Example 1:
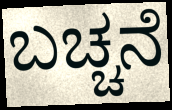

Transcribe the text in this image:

ಬಚ್ಚನೆ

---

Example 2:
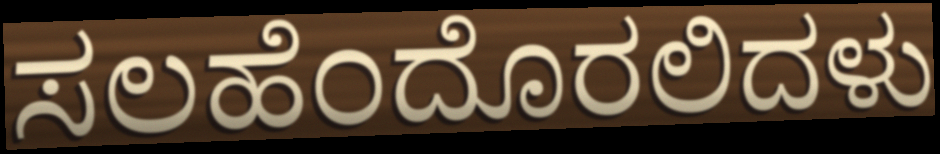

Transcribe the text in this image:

ಸಲಹೆಂದೊರಲಿದಳು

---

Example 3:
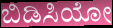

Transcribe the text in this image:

ಬಿಡಿಸಿಯೋ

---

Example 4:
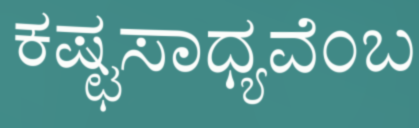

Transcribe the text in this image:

ಕಷ್ಟಸಾಧ್ಯವೆಂಬ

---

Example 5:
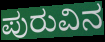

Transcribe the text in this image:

ಪುರುವಿನ